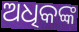
ଅଧିକଙ୍କ